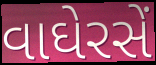
વાઘેરસેં